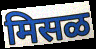
मिसळ